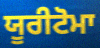
ਯੂਰੀਟੋਮਾ